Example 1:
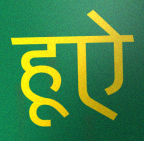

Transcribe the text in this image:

हूऐ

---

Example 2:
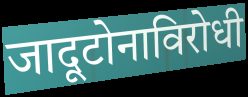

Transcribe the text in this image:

जादूटोनाविरोधी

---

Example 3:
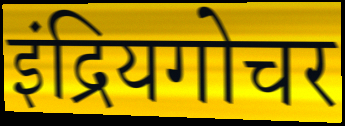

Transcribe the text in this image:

इंद्रियगोचर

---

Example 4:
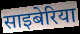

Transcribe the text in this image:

साइबेरिया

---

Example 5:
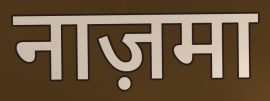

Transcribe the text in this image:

नाज़मा